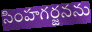
సింహగర్జనను